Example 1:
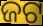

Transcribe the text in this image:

ଜଟ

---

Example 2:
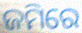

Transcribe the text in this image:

ଜମିରେ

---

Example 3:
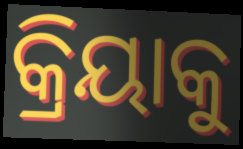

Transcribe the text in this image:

କ୍ରିୟାକୁ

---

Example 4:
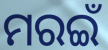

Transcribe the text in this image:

ମରଇଁ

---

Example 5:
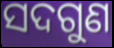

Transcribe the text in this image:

ସଦଗୁଣ